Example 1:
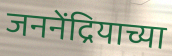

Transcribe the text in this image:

जननेंद्रियाच्या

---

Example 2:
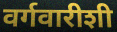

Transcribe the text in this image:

वर्गवारीशी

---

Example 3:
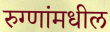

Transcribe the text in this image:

रुग्णांमधील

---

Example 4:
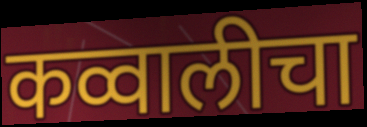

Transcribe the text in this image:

कव्वालीचा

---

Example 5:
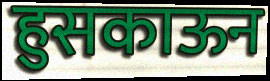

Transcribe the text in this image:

हुसकाऊन